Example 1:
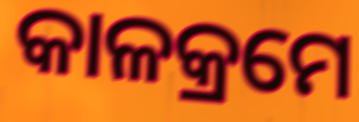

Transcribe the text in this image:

କାଳକ୍ରମେ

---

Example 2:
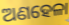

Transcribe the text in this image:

ଅଣହେଳା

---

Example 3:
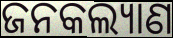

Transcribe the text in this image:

ଜନକଲ୍ୟାଣ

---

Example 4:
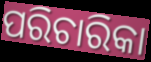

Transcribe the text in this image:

ପରିଚାରିକା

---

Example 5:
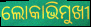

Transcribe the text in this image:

ଲୋକାଭିମୁଖୀ